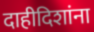
दाहीदिशांना